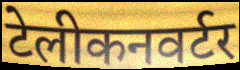
टेलीकनवर्टर